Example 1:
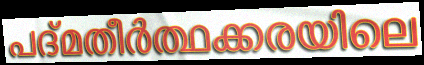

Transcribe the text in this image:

പദ്മതീർത്ഥക്കരയിലെ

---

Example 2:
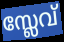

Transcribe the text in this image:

സ്ലേവ്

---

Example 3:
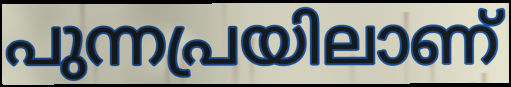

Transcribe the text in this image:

പുന്നപ്രയിലാണ്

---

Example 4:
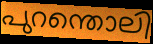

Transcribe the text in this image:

പുറന്തൊലി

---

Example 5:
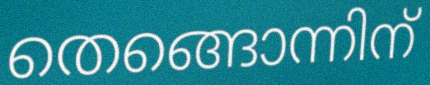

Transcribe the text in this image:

തെങ്ങൊന്നിന്